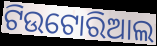
ଟିଉଟୋରିଆଲ